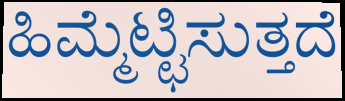
ಹಿಮ್ಮೆಟ್ಟಿಸುತ್ತದೆ